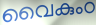
വൈകുംഠ